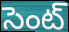
సెంట్